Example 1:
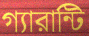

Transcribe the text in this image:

গ্যারান্টি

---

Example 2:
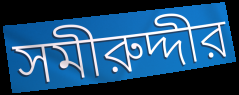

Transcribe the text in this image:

সমীরুদ্দীর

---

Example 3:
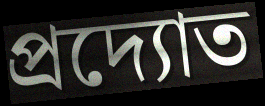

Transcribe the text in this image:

প্রদ্যোত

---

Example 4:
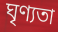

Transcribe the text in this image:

ঘৃণ্যতা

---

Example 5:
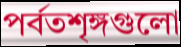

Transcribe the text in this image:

পর্বতশৃঙ্গগুলো